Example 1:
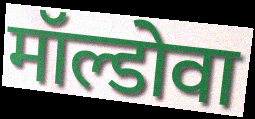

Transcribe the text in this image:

मॉल्डोवा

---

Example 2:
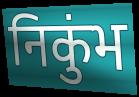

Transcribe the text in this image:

निकुंभ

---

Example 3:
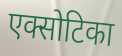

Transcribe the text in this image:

एक्सोटिका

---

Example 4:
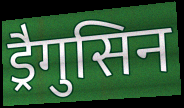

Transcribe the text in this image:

ड्रैगुसिन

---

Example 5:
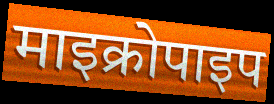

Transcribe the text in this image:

माइक्रोपाइप